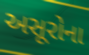
અસૂરોના